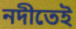
নদীতেই